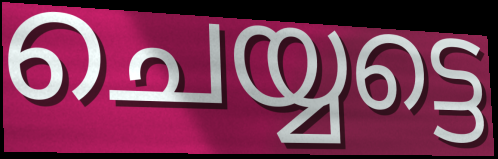
ചെയ്യട്ടെ